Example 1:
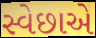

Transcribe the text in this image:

સ્વેછાએ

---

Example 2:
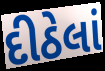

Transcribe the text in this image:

દીઠેલાં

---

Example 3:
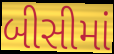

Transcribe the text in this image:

બીસીમાં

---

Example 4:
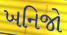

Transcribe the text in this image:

ખનિજો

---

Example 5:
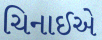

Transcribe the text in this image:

ચિનાઈએ